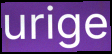
urige